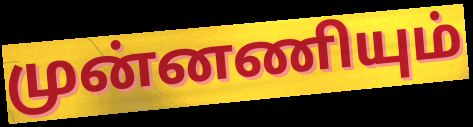
முன்னணியும்